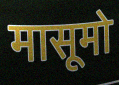
मासूमो